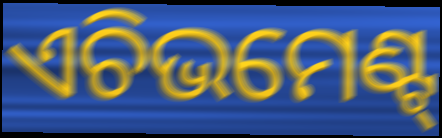
ଏଚିଭମେଣ୍ଟ୍